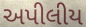
અપીલીય